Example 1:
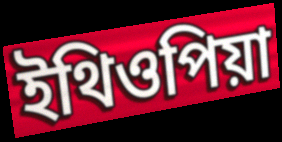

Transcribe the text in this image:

ইথিওপিয়া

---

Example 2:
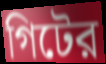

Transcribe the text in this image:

গিটের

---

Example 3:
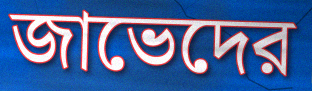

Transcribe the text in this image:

জাভেদের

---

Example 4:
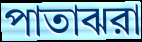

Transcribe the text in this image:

পাতাঝরা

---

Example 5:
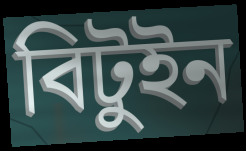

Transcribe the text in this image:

বিটুইন